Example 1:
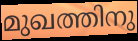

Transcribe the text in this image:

മുഖത്തിനു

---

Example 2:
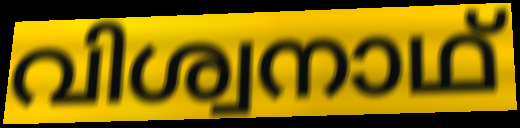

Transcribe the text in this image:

വിശ്വനാഥ്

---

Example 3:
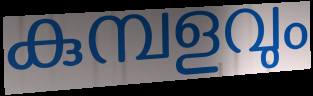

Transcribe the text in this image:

കുമ്പളവും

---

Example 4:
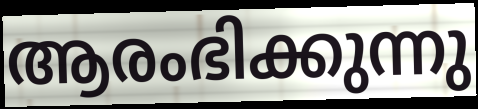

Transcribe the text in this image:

ആരംഭിക്കുന്നു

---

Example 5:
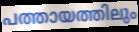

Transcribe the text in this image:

പത്തായത്തിലും